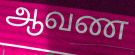
ஆவண